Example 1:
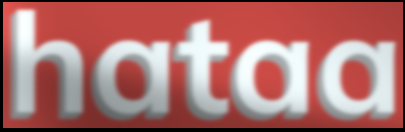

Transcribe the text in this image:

hataa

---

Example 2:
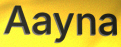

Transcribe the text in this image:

Aayna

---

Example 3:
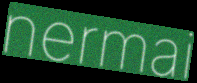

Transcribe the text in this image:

nermai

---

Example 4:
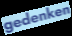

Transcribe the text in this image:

gedenken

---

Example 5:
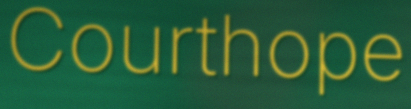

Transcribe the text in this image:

Courthope